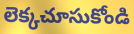
లెక్కచూసుకోండి